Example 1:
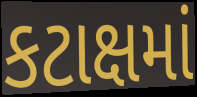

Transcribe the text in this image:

કટાક્ષમાં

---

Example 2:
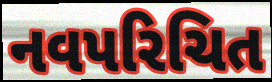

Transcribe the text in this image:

નવપરિચિત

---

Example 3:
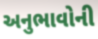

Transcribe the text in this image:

અનુભાવોની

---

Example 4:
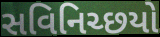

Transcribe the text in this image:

સવિનિચ્છયો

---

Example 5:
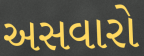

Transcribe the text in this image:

અસવારો